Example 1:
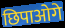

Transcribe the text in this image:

छिपाओगे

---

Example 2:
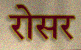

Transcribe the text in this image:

रोसर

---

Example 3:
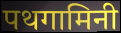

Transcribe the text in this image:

पथगामिनी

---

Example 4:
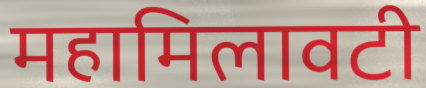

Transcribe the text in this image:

महामिलावटी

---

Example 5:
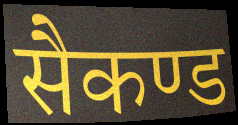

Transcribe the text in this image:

सैकण्ड